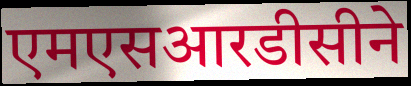
एमएसआरडीसीने